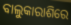
ବାଲୁକାରାଶିରେ